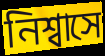
নিশ্বাসে